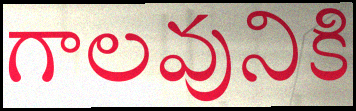
గాలవునికి